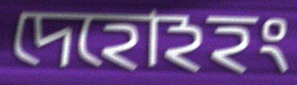
দেহোঽহং